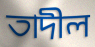
তাদীল